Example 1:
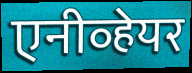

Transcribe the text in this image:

एनीव्हेयर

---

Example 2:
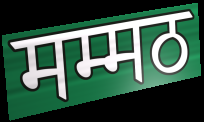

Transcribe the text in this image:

मम्मठ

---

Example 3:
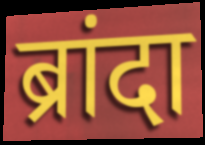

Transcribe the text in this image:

ब्रांदा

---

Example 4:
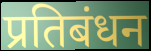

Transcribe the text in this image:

प्रतिबंधन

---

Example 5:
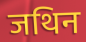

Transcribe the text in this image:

जथिन